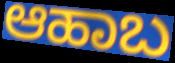
ಆಹಾಬ